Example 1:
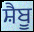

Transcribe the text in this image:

ਸ਼ੈਬੂ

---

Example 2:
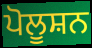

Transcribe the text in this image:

ਪੋਲੂਸ਼ਨ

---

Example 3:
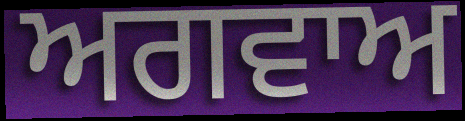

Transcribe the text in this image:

ਅਗਵਾਅ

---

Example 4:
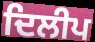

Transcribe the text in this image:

ਦਿਲੀਪ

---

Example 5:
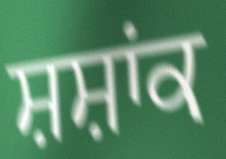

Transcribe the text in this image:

ਸ਼ਸ਼ਾਂਕ